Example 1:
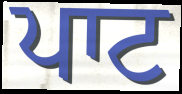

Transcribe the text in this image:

ਪਾਟ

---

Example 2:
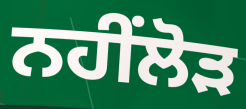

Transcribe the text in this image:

ਨਹੀਂਲੋੜ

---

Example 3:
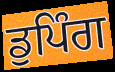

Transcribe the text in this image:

ਡੁਪਿੰਗ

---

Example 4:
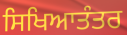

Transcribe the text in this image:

ਸਿਖਿਆਤੰਤਰ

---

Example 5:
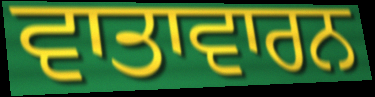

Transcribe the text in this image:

ਵਾਤਾਵਾਰਨ